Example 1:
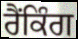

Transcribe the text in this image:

ਰੈੰਕਿੰਗ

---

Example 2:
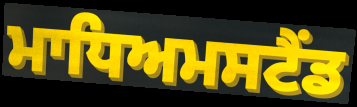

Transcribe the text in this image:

ਮਾਧਿਅਮਸਟੈਂਡ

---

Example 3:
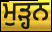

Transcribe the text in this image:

ਮੁੜ੍ਹਨ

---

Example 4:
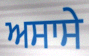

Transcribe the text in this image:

ਅਸਾਸੇ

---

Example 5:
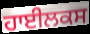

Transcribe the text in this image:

ਹਾਈਲਕਸ